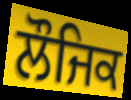
ਲੌਜਿਕ